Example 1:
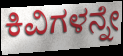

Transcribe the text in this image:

ಕಿವಿಗಳನ್ನೇ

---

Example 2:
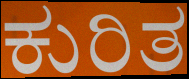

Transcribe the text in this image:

ಕುರಿತ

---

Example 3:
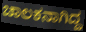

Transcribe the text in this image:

ಚಾಲಕನಾಗಿದ್ದ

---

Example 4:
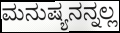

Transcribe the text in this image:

ಮನುಷ್ಯನನ್ನಲ್ಲ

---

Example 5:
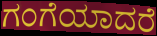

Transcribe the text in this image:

ಗಂಗೆಯಾದರೆ